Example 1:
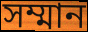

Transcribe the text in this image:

সম্মান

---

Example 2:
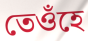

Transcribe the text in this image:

তেওঁহে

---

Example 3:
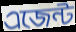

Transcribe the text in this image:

এজেন্ট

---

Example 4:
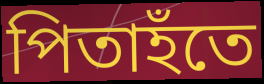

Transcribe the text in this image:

পিতাহঁতে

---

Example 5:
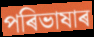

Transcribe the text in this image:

পৰিভাষাৰ